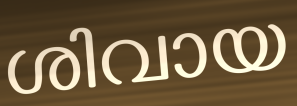
ശിവായ